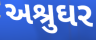
અશ્રુઘર